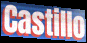
Castillo